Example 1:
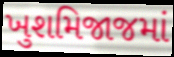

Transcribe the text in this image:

ખુશમિજાજમાં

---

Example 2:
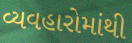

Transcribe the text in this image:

વ્યવહારોમાંથી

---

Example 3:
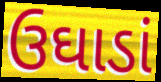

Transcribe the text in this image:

ઉઘાડાં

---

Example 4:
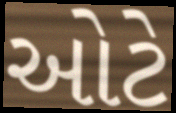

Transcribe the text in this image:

ઓટે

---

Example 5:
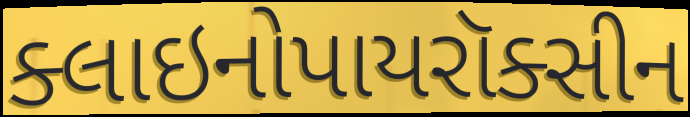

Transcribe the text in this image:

ક્લાઇનોપાયરૉક્સીન